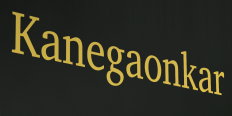
Kanegaonkar